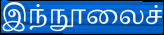
இந்நூலைச்